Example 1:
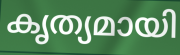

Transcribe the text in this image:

കൃത്യമായി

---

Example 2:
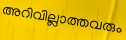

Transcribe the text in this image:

അറിവില്ലാത്തവരും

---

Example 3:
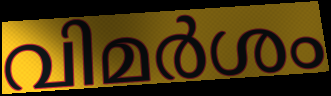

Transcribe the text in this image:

വിമർശം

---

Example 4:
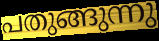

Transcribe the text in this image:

പതുങ്ങുന്നു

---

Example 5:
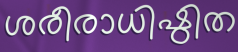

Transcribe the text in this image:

ശരീരാധിഷ്ഠിത